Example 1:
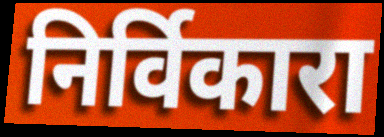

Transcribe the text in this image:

निर्विकारा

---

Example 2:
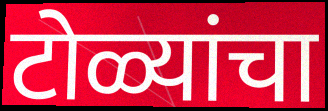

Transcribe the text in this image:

टोळ्यांचा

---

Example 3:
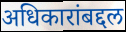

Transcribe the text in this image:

अधिकारांबद्दल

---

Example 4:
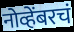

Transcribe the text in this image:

नोव्हेंबरचं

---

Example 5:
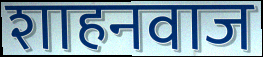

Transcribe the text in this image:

शाहनवाज